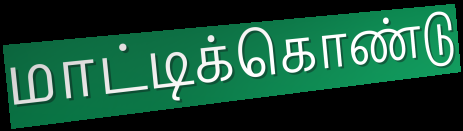
மாட்டிக்கொண்டு